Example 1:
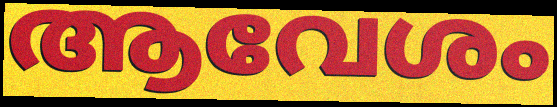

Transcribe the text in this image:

ആവേശം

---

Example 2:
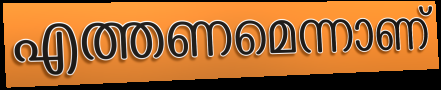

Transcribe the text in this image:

എത്തണമെന്നാണ്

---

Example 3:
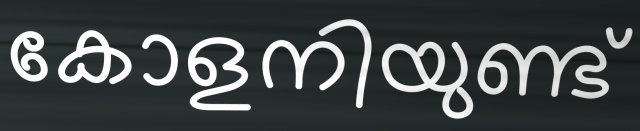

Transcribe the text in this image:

കോളനിയുണ്ട്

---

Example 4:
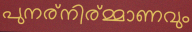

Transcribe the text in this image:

പുനര്നിര്മ്മാണവും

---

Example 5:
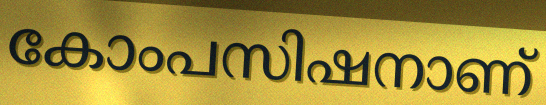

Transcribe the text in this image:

കോംപസിഷനാണ്